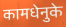
कामधेनुके